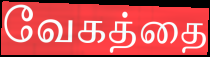
வேகத்தை